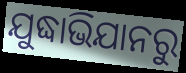
ଯୁଦ୍ଧାଭିଯାନରୁ